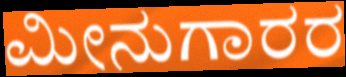
ಮೀನುಗಾರರ